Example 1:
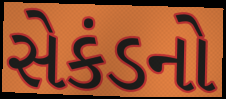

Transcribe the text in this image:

સેકંડનો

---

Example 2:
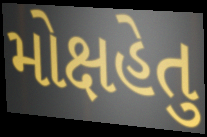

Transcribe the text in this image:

મોક્ષહેતુ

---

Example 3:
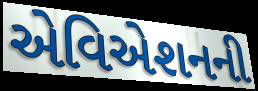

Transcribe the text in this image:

એવિએશનની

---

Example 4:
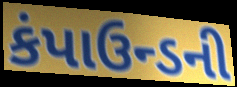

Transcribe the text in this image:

કંપાઉન્ડની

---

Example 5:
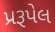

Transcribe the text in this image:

પ્રરૂપેલ